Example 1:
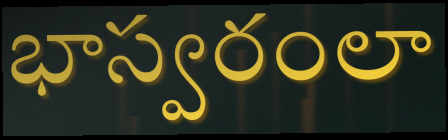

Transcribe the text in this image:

భాస్వరంలా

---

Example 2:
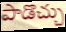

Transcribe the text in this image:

పాడొచ్చు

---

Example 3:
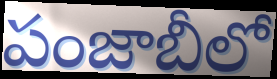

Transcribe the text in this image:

పంజాబీలో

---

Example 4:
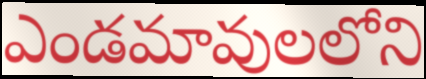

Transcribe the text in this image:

ఎండమావులలోని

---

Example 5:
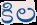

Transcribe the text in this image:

కిల